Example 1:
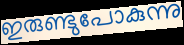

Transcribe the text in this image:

ഇരുണ്ടുപോകുന്നു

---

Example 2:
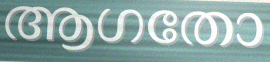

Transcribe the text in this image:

ആഗതോ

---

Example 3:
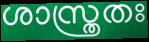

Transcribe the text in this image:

ശാസ്ത്രതഃ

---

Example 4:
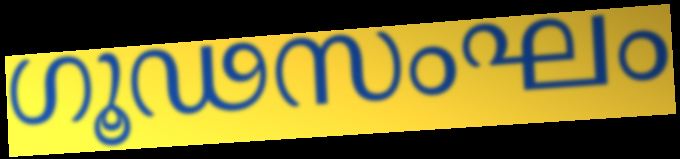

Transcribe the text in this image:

ഗൂഢസംഘം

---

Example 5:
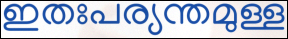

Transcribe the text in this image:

ഇതഃപര്യന്തമുള്ള